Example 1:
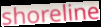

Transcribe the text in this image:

shoreline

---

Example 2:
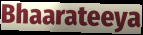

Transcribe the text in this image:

Bhaarateeya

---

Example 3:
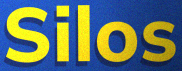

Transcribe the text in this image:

Silos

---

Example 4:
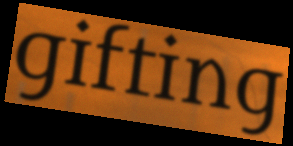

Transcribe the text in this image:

gifting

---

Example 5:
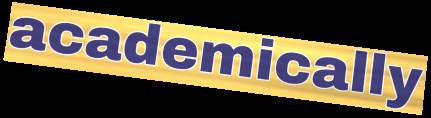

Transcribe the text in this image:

academically